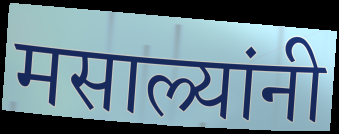
मसाल्यांनी